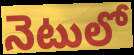
నెటులో